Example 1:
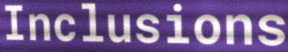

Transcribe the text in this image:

Inclusions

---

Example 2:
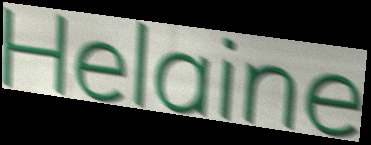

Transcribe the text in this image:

Helaine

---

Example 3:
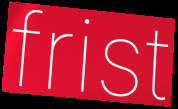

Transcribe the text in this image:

frist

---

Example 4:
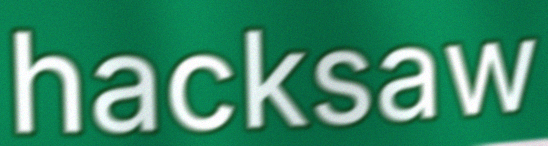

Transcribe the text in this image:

hacksaw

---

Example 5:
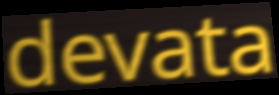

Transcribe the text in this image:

devata